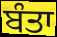
ਬੰਤਾ